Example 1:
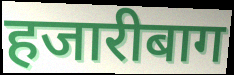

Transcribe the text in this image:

हजारीबाग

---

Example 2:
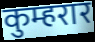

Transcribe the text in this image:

कुम्हरार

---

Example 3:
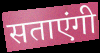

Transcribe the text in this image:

सताएंगी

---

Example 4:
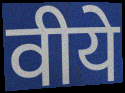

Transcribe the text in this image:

वीये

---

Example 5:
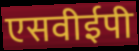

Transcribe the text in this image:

एसवीईपी